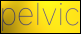
pelvic